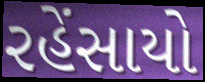
રહેંસાયો